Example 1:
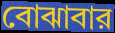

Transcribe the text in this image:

বোঝাবার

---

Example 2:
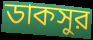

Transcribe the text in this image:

ডাকসুর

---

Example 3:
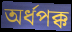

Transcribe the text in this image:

অর্ধপক্ক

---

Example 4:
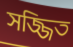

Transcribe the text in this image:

সজ্জিত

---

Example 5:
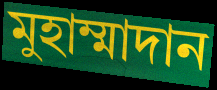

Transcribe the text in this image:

মুহাম্মাদান